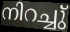
നിറച്ചു്